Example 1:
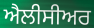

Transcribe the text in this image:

ਐਲੀਸੀਅਰ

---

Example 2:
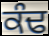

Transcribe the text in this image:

ਕੰਢ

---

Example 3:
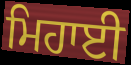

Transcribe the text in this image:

ਮਿਹਾਈ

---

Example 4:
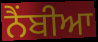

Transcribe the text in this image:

ਨੈਂਬੀਆ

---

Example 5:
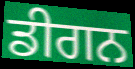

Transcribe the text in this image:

ਡੀਗਨ